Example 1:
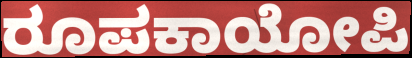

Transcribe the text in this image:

ರೂಪಕಾಯೋಪಿ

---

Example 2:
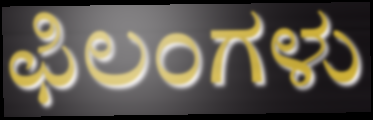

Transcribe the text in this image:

ಫಿಲಂಗಳು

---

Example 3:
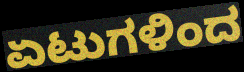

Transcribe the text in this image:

ಏಟುಗಳಿಂದ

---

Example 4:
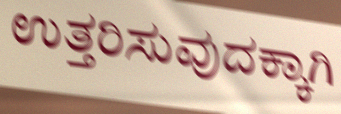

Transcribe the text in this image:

ಉತ್ತರಿಸುವುದಕ್ಕಾಗಿ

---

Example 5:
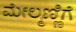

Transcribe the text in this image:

ಮೇಲ್ಮಣ್ಣಿಗೆ